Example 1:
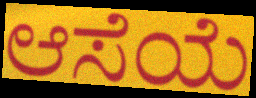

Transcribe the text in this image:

ಆಸೆಯೆ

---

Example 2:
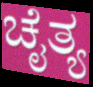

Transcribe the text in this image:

ಚೈತ್ಯ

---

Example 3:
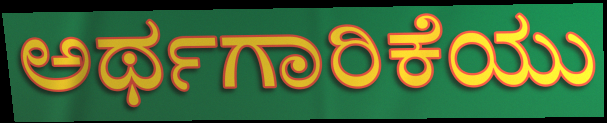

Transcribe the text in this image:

ಅರ್ಥಗಾರಿಕೆಯು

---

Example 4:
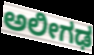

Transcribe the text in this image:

ಅಲೀಗಢ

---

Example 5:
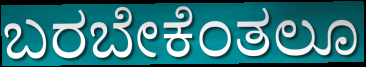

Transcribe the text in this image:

ಬರಬೇಕೆಂತಲೂ